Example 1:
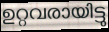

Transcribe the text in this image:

ഉറ്റവരായിട്ടു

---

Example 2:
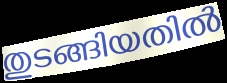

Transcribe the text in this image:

തുടങ്ങിയതിൽ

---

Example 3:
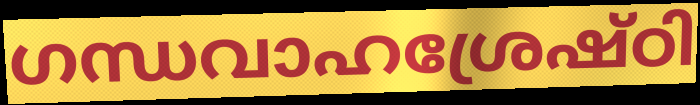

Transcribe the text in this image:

ഗന്ധവാഹശ്രേഷ്ഠി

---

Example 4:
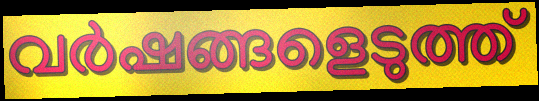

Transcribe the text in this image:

വർഷങ്ങളെടുത്ത്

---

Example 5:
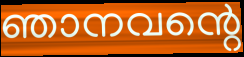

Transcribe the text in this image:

ഞാനവന്റെ